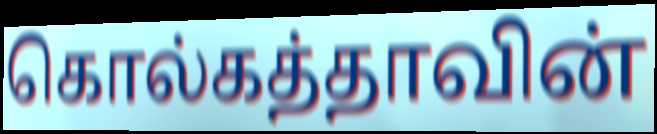
கொல்கத்தாவின்